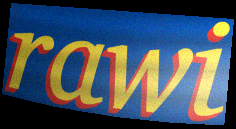
rawi